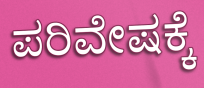
ಪರಿವೇಷಕ್ಕೆ